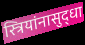
स्त्रियांनासुद्धा